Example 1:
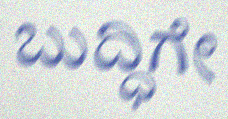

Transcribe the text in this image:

ಬುದ್ಧಿಗೇ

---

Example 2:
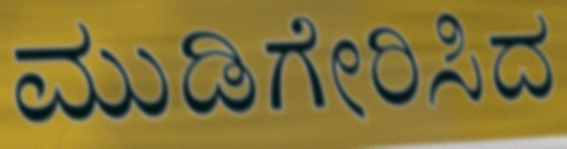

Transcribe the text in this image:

ಮುಡಿಗೇರಿಸಿದ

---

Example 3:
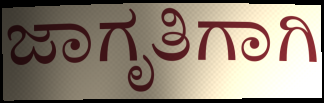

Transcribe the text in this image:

ಜಾಗೃತಿಗಾಗಿ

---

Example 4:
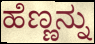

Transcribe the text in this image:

ಹೆಣ್ಣನ್ನು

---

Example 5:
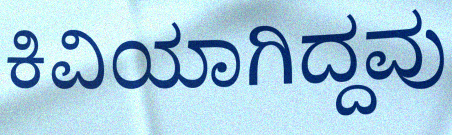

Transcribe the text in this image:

ಕಿವಿಯಾಗಿದ್ದವು